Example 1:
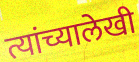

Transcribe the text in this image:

त्यांच्यालेखी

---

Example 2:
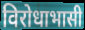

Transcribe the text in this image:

विरोधाभासी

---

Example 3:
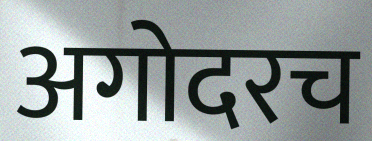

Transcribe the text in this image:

अगोदरच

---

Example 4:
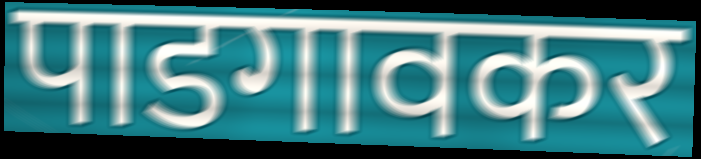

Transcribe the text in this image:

पाडगावकर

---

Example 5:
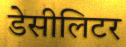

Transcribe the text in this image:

डेसीलिटर